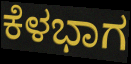
ಕೆಳಭಾಗ